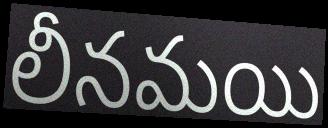
లీనమయి